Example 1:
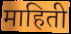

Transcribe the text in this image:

माहिती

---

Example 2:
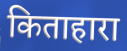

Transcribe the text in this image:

किताहारा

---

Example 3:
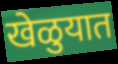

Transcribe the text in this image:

खेळुयात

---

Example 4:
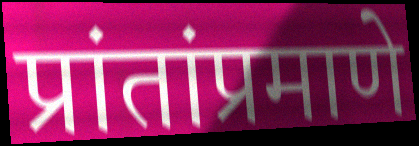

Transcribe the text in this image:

प्रांतांप्रमाणे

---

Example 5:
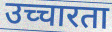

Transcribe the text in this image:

उच्चारता